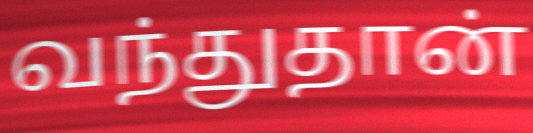
வந்துதான்